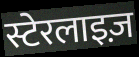
स्टेरलाइज़